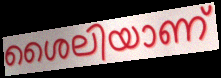
ശൈലിയാണ്